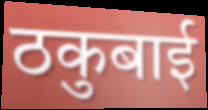
ठकुबाई